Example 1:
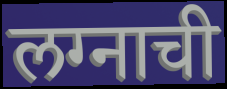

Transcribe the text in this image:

लग्नाची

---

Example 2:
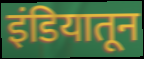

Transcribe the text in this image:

इंडियातून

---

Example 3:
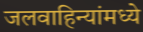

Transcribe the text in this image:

जलवाहिन्यांमध्ये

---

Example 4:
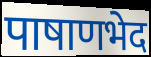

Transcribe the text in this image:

पाषाणभेद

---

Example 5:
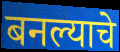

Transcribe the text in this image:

बनल्याचे